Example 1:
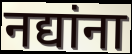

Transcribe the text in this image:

नद्यांना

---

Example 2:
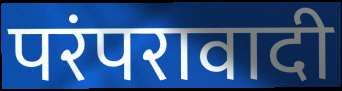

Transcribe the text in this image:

परंपरावादी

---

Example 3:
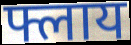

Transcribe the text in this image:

फ्लाय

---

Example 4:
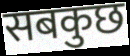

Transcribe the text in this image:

सबकुछ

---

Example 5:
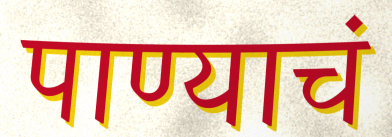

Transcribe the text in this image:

पाण्याचं